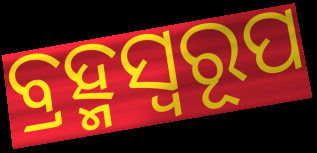
ବ୍ରହ୍ମସ୍ୱରୂପ